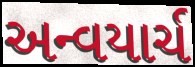
અન્વયાર્ચ